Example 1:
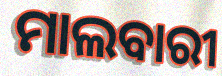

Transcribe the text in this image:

ମାଲବାରୀ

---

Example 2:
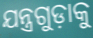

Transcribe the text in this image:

ଯନ୍ତ୍ରଗୁଡ଼ାକୁ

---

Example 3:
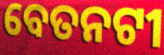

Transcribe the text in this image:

ବେତନଟୀ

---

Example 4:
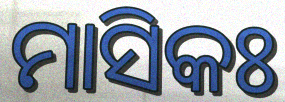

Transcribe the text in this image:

ମାସିକଃ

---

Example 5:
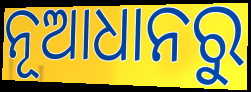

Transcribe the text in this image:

ନୂଆଧାନରୁ